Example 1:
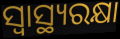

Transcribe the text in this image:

ସ୍ବାସ୍ଥ୍ୟରକ୍ଷା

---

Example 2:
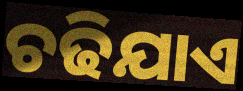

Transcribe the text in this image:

ଚଢିଯାଏ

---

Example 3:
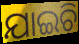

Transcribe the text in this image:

ଯାଇଚି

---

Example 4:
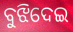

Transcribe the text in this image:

ବୁଝିଦେଇ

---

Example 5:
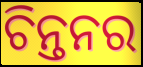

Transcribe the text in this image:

ଚିନ୍ତନର